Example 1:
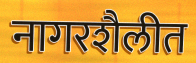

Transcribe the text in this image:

नागरशैलीत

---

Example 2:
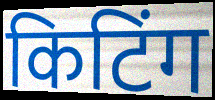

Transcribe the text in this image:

किटिंग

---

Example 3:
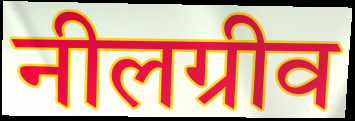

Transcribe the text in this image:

नीलग्रीव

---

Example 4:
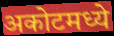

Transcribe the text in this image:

अकोटमध्ये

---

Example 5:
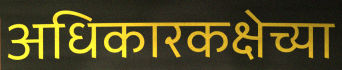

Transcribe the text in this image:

अधिकारकक्षेच्या